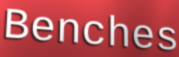
Benches